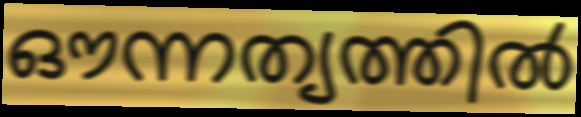
ഔന്നത്യത്തിൽ